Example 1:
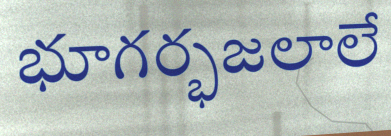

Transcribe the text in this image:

భూగర్భజలాలే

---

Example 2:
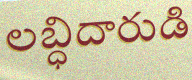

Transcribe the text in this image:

లబ్ధిదారుడి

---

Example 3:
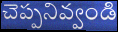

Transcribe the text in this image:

చెప్పనివ్వండి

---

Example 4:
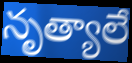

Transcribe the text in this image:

నృత్యాలే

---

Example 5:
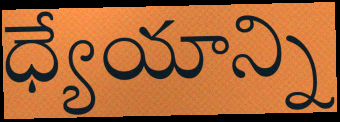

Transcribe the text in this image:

ధ్యేయాన్ని